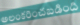
అలంకరించబడింది